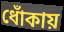
ধোঁকায়